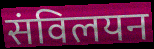
संविलयन